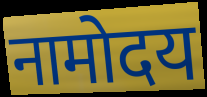
नामोदय